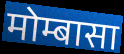
मोम्बासा